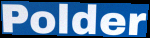
Polder